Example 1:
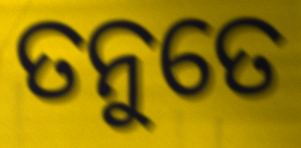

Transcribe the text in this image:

ତନୁତେ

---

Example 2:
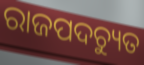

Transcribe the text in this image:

ରାଜପଦଚ୍ୟୁତ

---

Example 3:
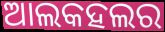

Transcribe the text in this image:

ଆଲକହଲର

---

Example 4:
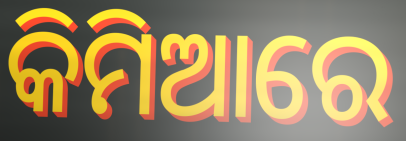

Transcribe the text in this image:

କିମିଆରେ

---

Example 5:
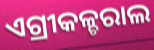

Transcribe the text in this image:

ଏଗ୍ରୀକଳ୍ଚରାଲ